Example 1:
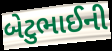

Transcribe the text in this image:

બેટુભાઈની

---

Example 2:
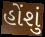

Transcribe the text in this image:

હોંશું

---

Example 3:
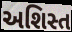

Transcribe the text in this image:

અશિસ્ત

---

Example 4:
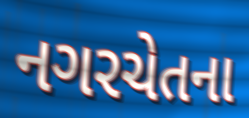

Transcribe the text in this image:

નગરચેતના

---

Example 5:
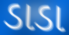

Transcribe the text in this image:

ડાડા